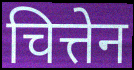
चित्तेन